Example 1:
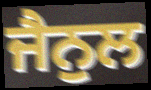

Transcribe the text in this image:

ਜੈਨੁਲ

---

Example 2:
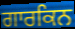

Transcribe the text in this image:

ਗਾਰਕਿਨ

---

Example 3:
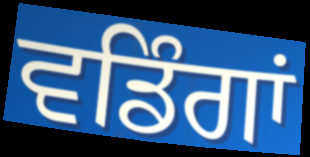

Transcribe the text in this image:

ਵਡਿੰਗਾਂ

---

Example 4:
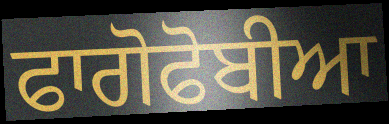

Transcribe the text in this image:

ਫਾਗੋਫੋਬੀਆ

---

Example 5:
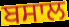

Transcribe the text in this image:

ਬਸਾਲ